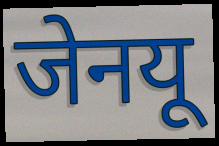
जेनयू